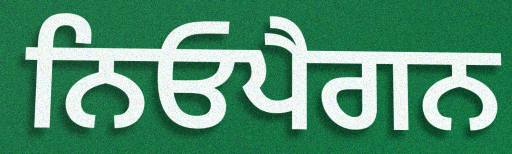
ਨਿਓਪੈਗਨ